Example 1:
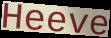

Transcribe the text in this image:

Heeve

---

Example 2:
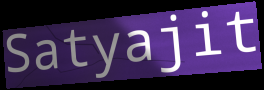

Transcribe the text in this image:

Satyajit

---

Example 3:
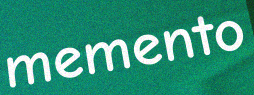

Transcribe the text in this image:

memento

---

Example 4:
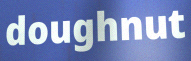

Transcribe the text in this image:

doughnut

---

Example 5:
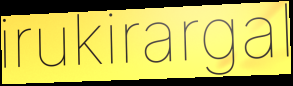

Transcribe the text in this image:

irukirargal